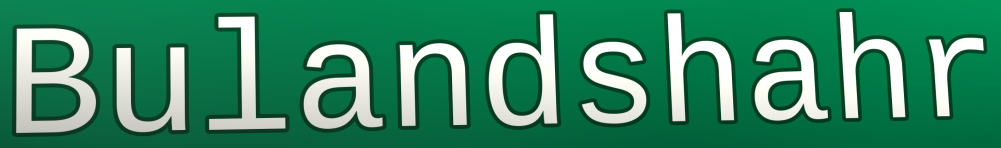
Bulandshahr